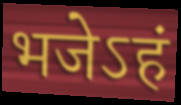
भजेऽहं